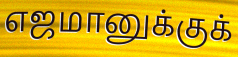
எஜமானுக்குக்